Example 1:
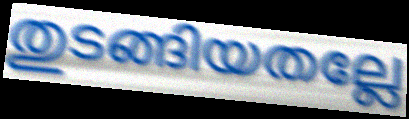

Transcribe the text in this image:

തുടങ്ങിയതല്ലേ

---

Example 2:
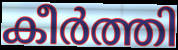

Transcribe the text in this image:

കീർത്തി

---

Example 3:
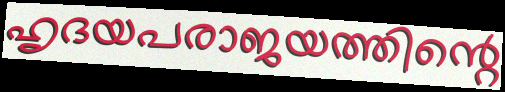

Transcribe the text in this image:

ഹൃദയപരാജയത്തിന്റെ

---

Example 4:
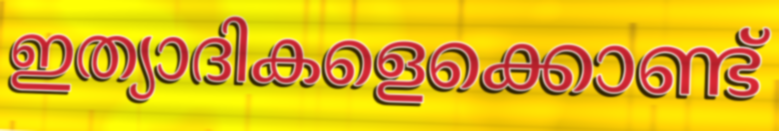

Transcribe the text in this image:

ഇത്യാദികളെക്കൊണ്ട്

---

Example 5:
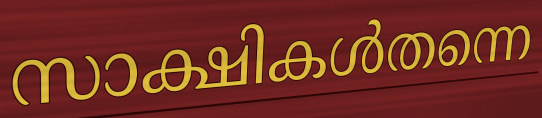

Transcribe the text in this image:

സാക്ഷികൾതന്നെ